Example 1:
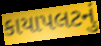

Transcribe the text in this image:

કાયાપલટનું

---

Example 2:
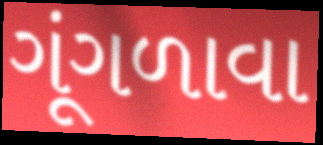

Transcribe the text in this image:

ગૂંગળાવા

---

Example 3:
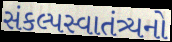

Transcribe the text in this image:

સંકલ્પસ્વાતંત્ર્યનો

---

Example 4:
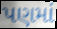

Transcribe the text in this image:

પણમાં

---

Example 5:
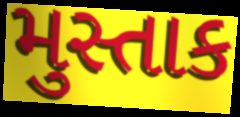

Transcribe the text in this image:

મુસ્તાક